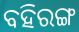
ବହିରଙ୍ଗ